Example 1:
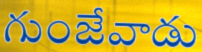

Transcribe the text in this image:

గుంజేవాడు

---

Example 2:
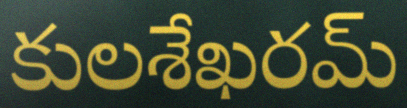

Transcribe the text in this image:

కులశేఖరమ్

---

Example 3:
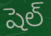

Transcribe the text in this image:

షెల్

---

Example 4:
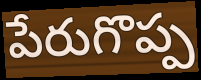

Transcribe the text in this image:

పేరుగొప్ప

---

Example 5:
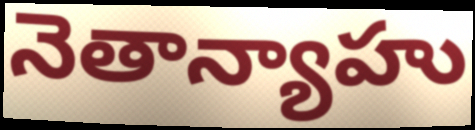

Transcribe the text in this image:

నెతాన్యాహు